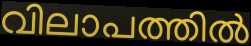
വിലാപത്തിൽ